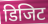
डिजिट